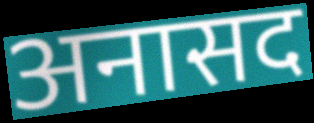
अनासद